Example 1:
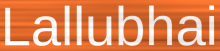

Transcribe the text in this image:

Lallubhai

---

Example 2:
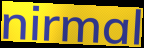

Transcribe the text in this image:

nirmal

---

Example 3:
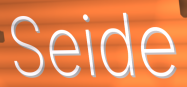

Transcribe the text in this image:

Seide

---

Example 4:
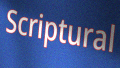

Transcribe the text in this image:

Scriptural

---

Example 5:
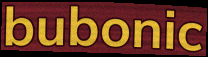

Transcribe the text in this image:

bubonic